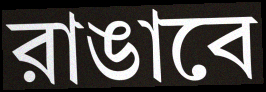
রাঙাবে